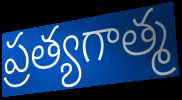
ప్రత్యగాత్మ